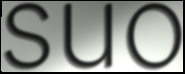
suo